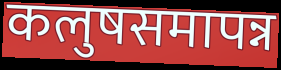
कलुषसमापन्न